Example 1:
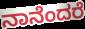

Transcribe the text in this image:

ನಾನೆಂದರೆ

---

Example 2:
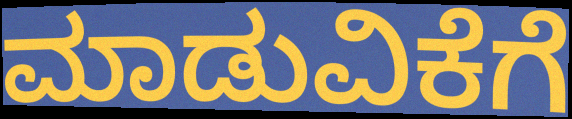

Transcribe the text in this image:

ಮಾಡುವಿಕೆಗೆ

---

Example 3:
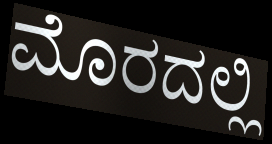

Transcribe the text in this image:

ಮೊರದಲ್ಲಿ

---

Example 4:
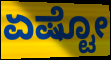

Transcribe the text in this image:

ಏಷ್ಟೋ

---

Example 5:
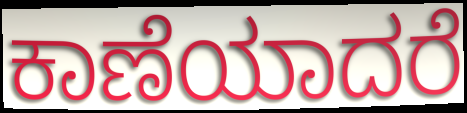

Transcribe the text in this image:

ಕಾಣೆಯಾದರೆ